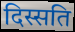
दिस्सति